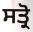
ਸਤ੍ਰੋ